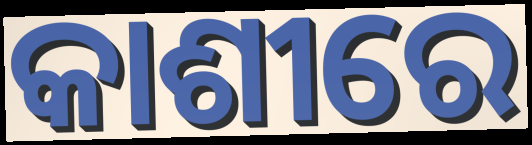
କାଶୀରେ